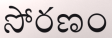
సోరణం